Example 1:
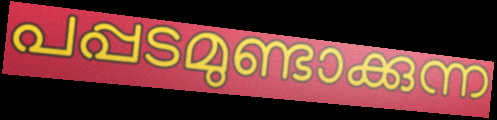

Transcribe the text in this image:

പപ്പടമുണ്ടാക്കുന്ന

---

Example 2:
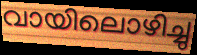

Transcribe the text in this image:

വായിലൊഴിച്ചു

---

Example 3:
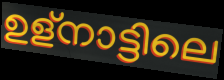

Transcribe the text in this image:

ഉള്നാട്ടിലെ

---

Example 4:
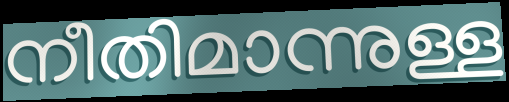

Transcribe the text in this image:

നീതിമാന്നുള്ള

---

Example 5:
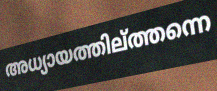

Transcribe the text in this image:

അധ്യായത്തില്ത്തന്നെ